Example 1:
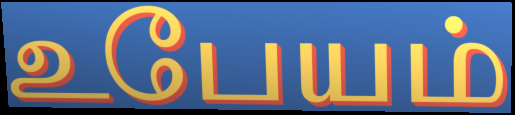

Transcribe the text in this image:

உபேயம்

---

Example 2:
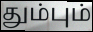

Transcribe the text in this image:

தும்பும்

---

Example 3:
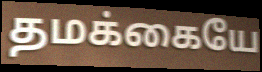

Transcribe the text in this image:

தமக்கையே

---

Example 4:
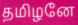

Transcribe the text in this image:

தமிழனே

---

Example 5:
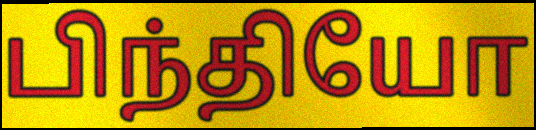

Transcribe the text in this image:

பிந்தியோ